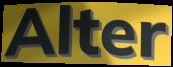
Alter